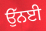
ਉੱਨਈ